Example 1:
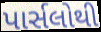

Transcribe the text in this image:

પાર્સલોથી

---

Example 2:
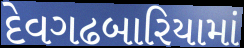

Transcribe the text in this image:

દેવગઢબારિયામાં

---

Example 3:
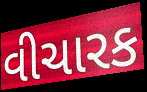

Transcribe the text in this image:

વીચારક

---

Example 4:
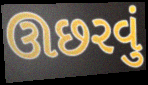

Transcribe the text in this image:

ઊછરવું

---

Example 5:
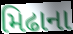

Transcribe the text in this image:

મિઢાના